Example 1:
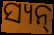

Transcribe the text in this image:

ସ୍ୟନ୍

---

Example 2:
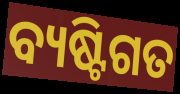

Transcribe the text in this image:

ବ୍ୟଷ୍ଟିଗତ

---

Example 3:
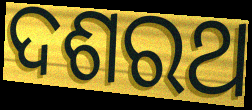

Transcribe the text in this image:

ଦଶରଥ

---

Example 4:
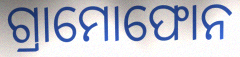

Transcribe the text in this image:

ଗ୍ରାମୋଫୋନ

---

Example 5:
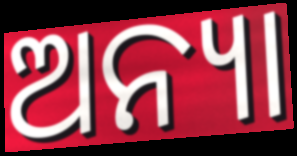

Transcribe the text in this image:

ଅନ୍ୟା